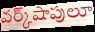
వర్క్‌షాపులూ